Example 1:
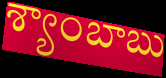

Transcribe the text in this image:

శ్యాంబాబు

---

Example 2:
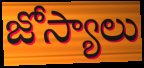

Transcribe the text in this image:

జోస్యాలు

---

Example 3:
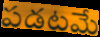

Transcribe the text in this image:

పడటమే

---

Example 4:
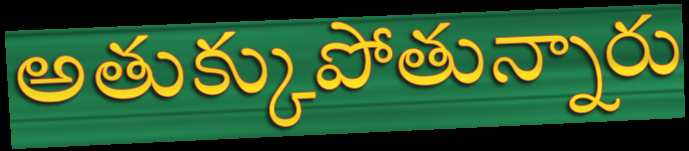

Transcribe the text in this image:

అతుక్కుపోతున్నారు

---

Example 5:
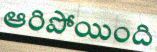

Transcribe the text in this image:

ఆరిపోయింది